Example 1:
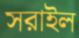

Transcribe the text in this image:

সরাইল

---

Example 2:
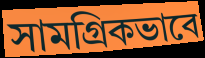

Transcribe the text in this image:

সামগ্রিকভাবে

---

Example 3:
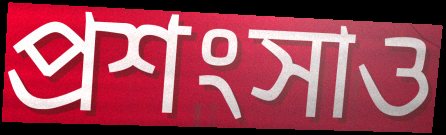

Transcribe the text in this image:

প্রশংসাও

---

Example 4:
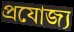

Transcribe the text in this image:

প্রযোজ্য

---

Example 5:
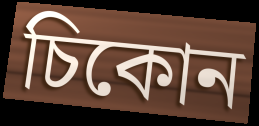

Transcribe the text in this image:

চিকোন